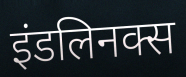
इंडलिनक्स